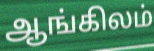
ஆங்கிலம்